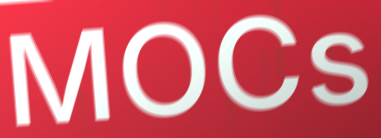
MOCs